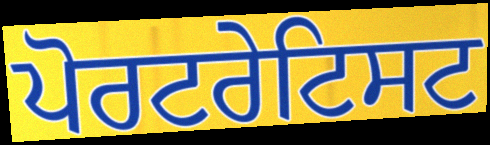
ਪੋਰਟਰੇਟਿਸਟ